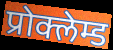
प्रोक्लेम्ड